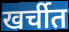
खर्चीत